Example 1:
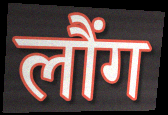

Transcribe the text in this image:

लौंग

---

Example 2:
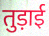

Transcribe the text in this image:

तुड़ाई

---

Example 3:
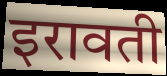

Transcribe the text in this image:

इरावती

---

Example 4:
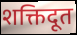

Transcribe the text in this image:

शक्तिदूत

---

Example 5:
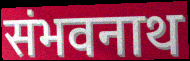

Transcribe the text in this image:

संभवनाथ